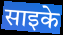
साइके